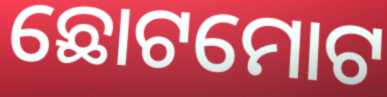
ଛୋଟମୋଟ